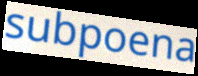
subpoena